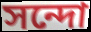
সন্দো